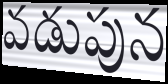
వడుపున